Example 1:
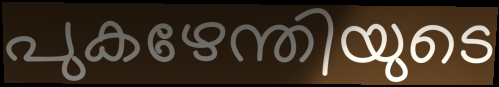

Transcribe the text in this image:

പുകഴേന്തിയുടെ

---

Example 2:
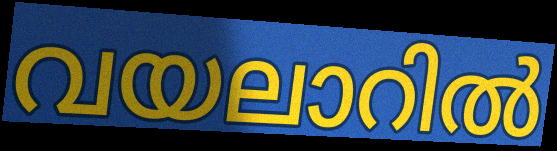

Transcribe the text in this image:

വയലാറിൽ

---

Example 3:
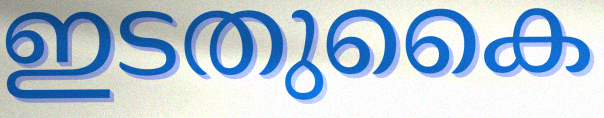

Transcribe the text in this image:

ഇടതുകൈ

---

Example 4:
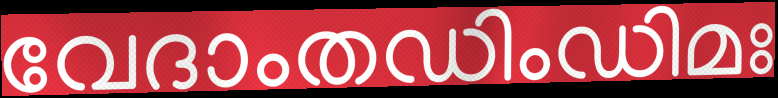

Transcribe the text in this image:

വേദാംതഡിംഡിമഃ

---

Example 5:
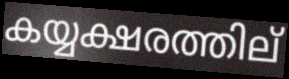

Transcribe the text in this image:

കയ്യക്ഷരത്തില്